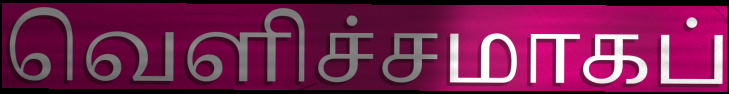
வெளிச்சமாகப்